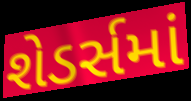
શેડર્સમાં